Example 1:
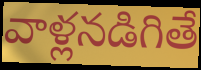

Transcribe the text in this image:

వాళ్లనడిగితే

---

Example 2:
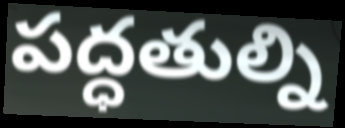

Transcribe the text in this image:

పద్ధతుల్ని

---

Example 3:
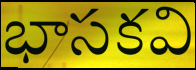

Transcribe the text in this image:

భాసకవి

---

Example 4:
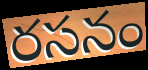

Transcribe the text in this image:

రసనం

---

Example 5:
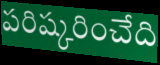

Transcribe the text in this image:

పరిష్కరించేది